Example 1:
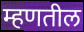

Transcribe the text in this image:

म्हणतील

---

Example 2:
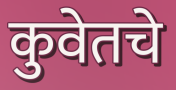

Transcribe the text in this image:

कुवेतचे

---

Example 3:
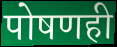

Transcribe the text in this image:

पोषणही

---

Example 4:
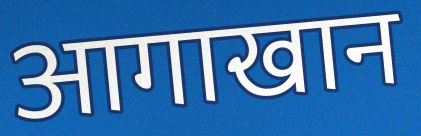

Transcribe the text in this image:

आगाखान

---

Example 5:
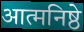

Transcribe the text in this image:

आत्मनिष्ठे